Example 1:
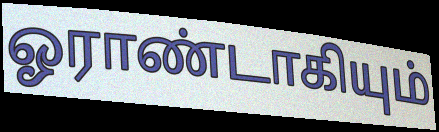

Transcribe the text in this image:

ஓராண்டாகியும்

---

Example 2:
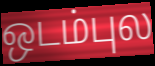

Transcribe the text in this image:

ஒடம்புல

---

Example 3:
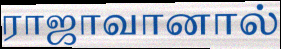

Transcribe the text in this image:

ராஜாவானால்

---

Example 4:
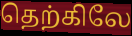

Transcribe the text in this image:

தெற்கிலே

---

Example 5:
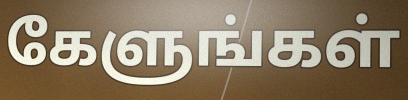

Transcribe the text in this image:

கேளுங்கள்